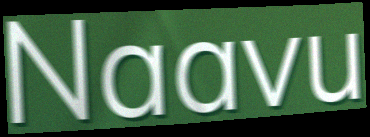
Naavu